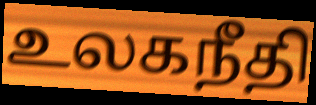
உலகநீதி